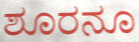
ಶೂರನೂ